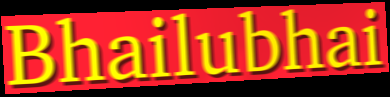
Bhailubhai